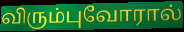
விரும்புவோரால்